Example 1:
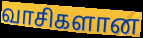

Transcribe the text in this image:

வாசிகளான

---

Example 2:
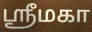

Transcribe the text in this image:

ஸ்ரீமகா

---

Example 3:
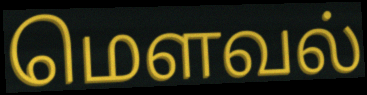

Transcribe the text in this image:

மௌவல்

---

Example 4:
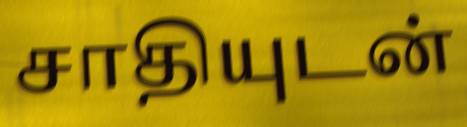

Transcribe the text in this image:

சாதியுடன்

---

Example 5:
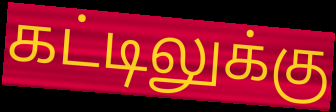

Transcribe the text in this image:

கட்டிலுக்கு